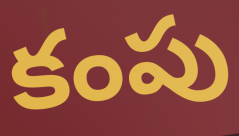
కంపు